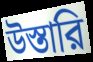
উস্তারি